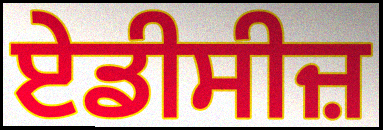
ਏਡੀਸੀਜ਼